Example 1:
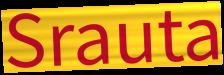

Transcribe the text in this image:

Srauta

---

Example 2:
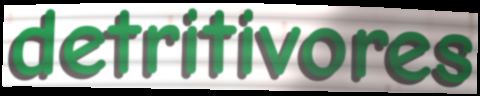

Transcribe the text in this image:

detritivores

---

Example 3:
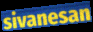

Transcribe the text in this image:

sivanesan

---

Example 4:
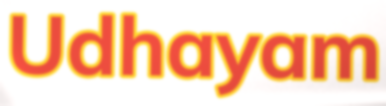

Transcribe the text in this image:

Udhayam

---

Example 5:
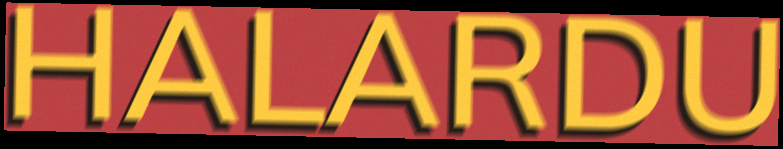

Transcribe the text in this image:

HALARDU